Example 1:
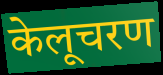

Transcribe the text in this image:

केलूचरण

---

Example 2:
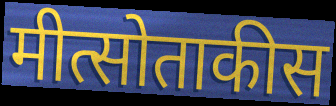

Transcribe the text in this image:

मीत्सोताकीस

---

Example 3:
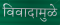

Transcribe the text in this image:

विवादामुळे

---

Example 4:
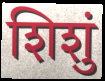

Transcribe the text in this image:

शिशुं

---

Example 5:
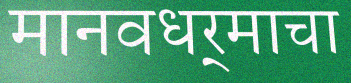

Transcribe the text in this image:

मानवधर्माचा